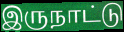
இருநாட்டு